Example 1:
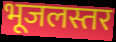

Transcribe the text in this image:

भूजलस्तर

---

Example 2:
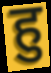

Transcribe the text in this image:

हु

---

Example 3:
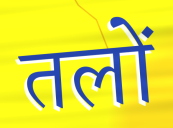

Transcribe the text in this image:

तलों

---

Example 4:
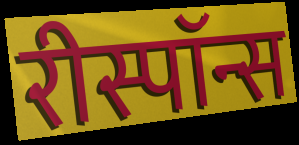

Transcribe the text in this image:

रीस्पॉन्स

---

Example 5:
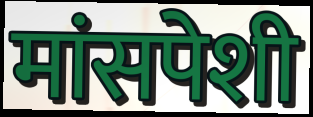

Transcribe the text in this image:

मांसपेशी